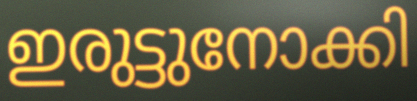
ഇരുട്ടുനോക്കി